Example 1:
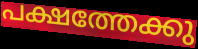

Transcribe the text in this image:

പക്ഷത്തേക്കു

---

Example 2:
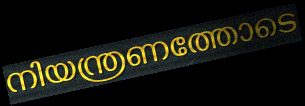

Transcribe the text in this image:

നിയന്ത്രണത്തോടെ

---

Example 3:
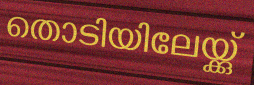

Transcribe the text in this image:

തൊടിയിലേയ്ക്കു്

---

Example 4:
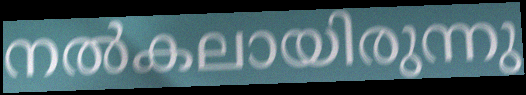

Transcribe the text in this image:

നൽകലായിരുന്നു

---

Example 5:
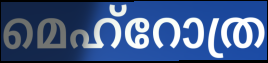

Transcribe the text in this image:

മെഹ്റോത്ര